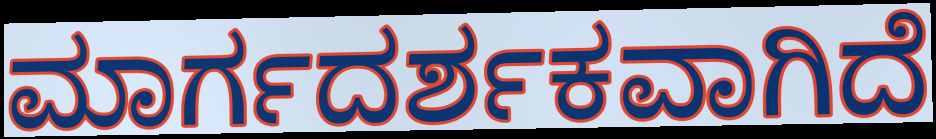
ಮಾರ್ಗದರ್ಶಕವಾಗಿದೆ